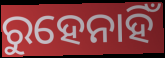
ରୁହେନାହିଁ